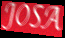
JOSA